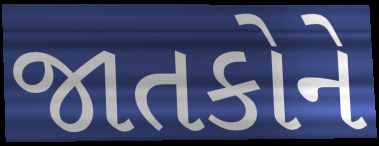
જાતકોને